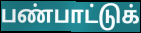
பண்பாட்டுக்